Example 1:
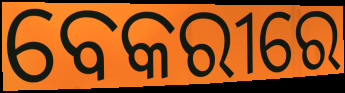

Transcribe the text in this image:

ବେକରୀରେ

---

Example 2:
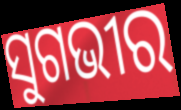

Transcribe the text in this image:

ସୁଗଭୀର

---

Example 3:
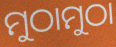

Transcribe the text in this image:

ମୁଠାମୁଠା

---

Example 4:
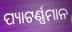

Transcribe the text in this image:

ପ୍ୟାଟର୍ଣ୍ଣମାନ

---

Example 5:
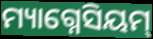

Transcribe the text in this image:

ମ୍ୟାଗ୍ନେସିୟମ୍